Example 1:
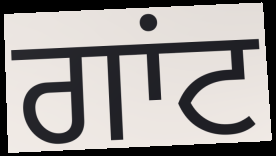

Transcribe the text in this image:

ਗਾਂਟ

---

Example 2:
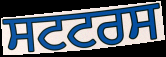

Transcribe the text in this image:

ਸਟਟਰਸ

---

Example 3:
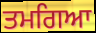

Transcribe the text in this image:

ਤਮਗਿਆ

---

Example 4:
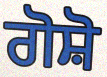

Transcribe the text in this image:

ਗੋਸ਼ੋ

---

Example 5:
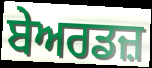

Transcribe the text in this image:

ਬੇਅਰਡਜ਼